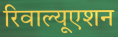
रिवाल्यूएशन